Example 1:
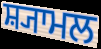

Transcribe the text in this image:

ਸ਼੍ਯਾਮਲ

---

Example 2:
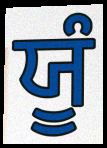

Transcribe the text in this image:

ਯੂੰ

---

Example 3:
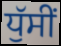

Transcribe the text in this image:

ਧੁੱਸੀਂ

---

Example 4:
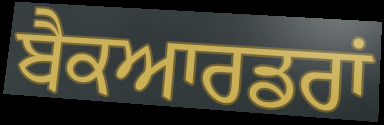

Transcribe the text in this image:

ਬੈਕਆਰਡਰਾਂ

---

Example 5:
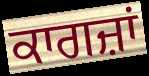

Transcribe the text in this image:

ਕਾਗਜ਼ਾਂ